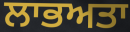
ਲਾਭਅਤਾ